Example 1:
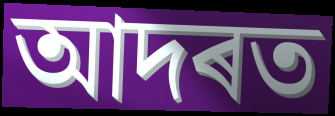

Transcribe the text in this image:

আদৰত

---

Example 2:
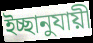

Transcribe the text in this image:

ইচ্ছানুযায়ী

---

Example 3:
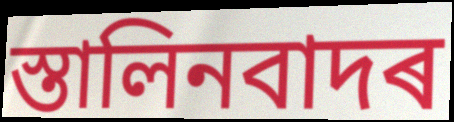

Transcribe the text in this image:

স্তালিনবাদৰ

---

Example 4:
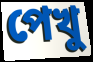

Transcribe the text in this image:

পেখু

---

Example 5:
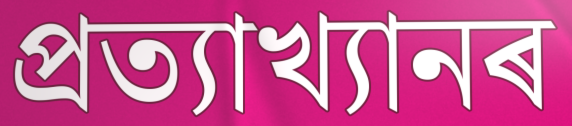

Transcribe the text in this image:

প্ৰত্যাখ্যানৰ